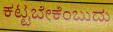
ಕಟ್ಟಬೇಕೆಂಬುದು